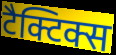
टैक्टिक्स